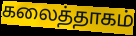
கலைத்தாகம்